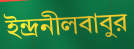
ইন্দ্রনীলবাবুর